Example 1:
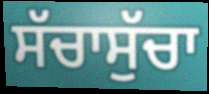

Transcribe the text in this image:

ਸੱਚਾਸੁੱਚਾ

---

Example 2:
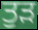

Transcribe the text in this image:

ਤੁੜ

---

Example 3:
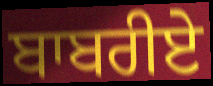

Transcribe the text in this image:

ਬਾਬਰੀਏ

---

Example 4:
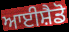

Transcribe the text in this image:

ਆਈਸ਼ੈਡੋ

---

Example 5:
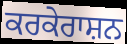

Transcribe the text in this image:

ਕਰਕੇਰਾਸ਼ਨ